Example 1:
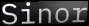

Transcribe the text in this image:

Sinor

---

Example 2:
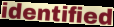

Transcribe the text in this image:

identified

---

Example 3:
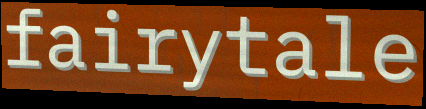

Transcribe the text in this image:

fairytale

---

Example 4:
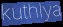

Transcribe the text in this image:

kuthlya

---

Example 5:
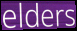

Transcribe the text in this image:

elders